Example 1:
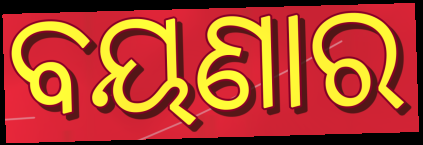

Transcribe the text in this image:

ବୟଣାର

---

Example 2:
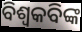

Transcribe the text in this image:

ବିଶ୍ୱକବିଙ୍କ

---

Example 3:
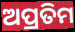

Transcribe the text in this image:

ଅପ୍ରତିମ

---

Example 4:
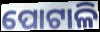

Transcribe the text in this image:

ପୋଟାଳି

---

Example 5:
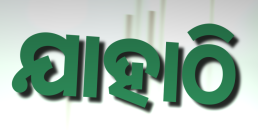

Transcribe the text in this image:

ଯାହାଠି